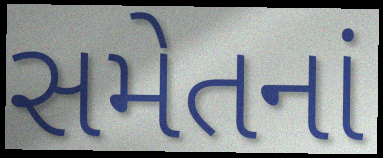
સમેતનાં